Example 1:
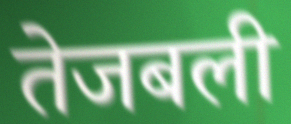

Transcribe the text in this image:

तेजबली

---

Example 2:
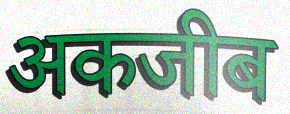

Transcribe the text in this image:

अकजीब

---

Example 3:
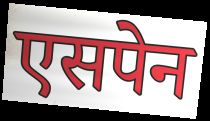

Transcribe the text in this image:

एसपेन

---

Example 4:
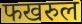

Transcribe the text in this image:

फखरुल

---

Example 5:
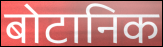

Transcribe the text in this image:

बोटानिक